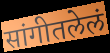
सांगीतलेलं